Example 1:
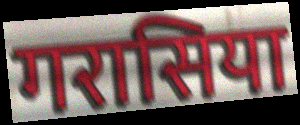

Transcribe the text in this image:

गरासिया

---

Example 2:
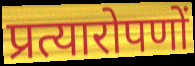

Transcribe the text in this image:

प्रत्यारोपणों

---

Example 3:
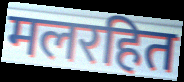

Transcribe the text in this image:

मलरहित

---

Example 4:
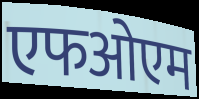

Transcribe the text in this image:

एफओएम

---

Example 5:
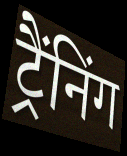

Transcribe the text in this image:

ट्रैंनिंग